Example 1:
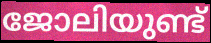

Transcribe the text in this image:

ജോലിയുണ്ട്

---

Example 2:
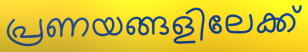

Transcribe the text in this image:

പ്രണയങ്ങളിലേക്ക്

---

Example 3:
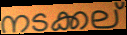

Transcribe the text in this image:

നടക്കല്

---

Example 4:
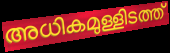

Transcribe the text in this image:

അധികമുള്ളിടത്ത്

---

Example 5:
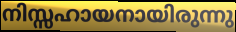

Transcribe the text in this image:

നിസ്സഹായനായിരുന്നു